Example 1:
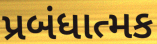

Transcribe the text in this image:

પ્રબંધાત્મક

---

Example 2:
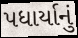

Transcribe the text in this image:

પધાર્યાનું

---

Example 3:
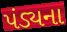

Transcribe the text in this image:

પંડ્યના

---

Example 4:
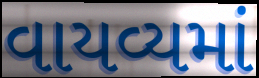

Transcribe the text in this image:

વાયવ્યમાં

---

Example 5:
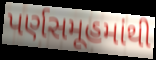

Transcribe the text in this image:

પર્ણસમૂહમાંથી